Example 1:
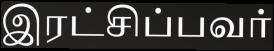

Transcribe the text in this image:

இரட்சிப்பவர்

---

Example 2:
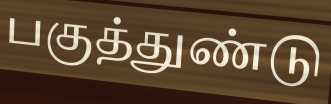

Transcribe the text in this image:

பகுத்துண்டு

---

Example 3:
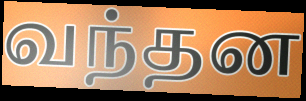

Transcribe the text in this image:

வந்தன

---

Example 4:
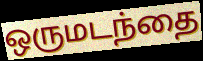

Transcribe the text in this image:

ஒருமடந்தை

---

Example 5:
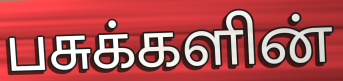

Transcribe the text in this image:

பசுக்களின்